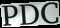
PDC